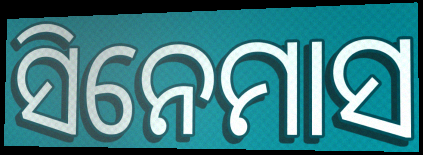
ସିନେମାସ